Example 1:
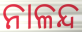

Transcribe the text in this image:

ନାଳନ୍ଦ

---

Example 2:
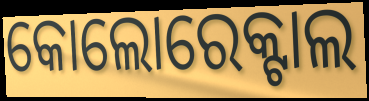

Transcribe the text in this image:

କୋଲୋରେକ୍ଟାଲ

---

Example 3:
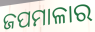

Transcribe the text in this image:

ଜପମାଳାର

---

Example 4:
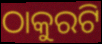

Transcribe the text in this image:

ଠାକୁରଟି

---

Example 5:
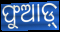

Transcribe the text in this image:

ଫୁଆଡ଼୍